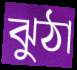
ঝুঠা